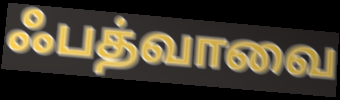
ஃபத்வாவை